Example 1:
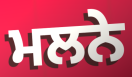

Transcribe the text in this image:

ਮਲਨੇ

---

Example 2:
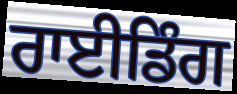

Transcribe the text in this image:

ਰਾਈਡਿੰਗ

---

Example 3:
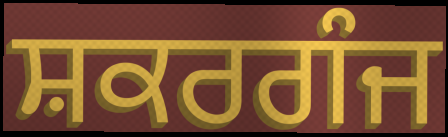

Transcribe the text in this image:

ਸ਼ਕਰਗੰਜ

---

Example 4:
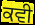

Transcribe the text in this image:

ਕਵੀ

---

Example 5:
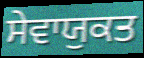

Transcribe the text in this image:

ਸੇਵਾਯੁਕਤ